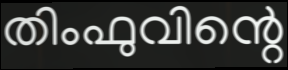
തിംഫുവിന്റെ